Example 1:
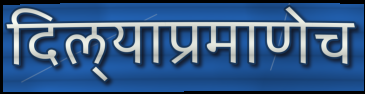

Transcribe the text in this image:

दिल्याप्रमाणेच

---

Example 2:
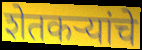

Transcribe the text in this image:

शेतकर्‍यांचे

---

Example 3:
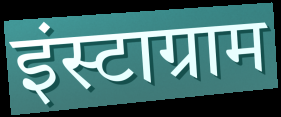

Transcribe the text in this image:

इंस्टाग्राम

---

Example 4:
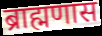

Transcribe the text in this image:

ब्राह्मणास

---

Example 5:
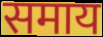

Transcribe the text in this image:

समाय